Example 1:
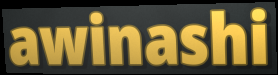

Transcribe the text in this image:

awinashi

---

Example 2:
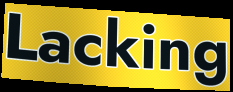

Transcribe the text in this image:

Lacking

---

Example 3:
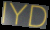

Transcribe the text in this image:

IYD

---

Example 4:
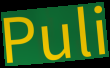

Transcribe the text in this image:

Puli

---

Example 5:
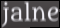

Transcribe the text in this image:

jalne